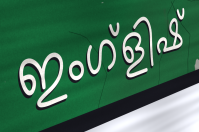
ഇംഗ്ളിഷ്